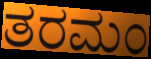
ತರಮಂ